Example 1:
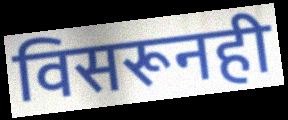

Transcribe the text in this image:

विसरूनही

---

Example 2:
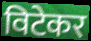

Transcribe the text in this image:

विटेकर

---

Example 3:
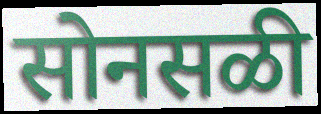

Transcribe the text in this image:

सोनसळी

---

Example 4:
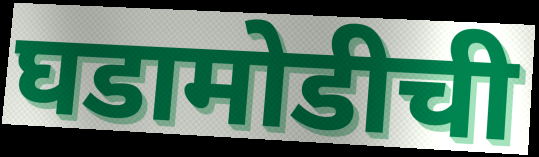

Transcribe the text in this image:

घडामोडीची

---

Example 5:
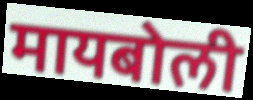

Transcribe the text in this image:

मायबोली